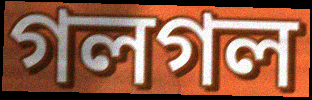
গলগল